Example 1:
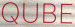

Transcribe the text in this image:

QUBE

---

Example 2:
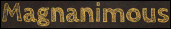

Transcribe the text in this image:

Magnanimous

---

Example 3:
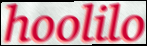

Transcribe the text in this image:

hoolilo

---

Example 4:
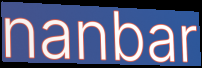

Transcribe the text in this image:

nanbar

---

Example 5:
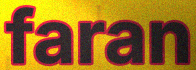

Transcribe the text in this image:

faran